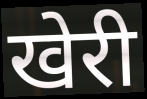
खेरी